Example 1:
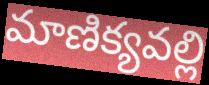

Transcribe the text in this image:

మాణిక్యవల్లి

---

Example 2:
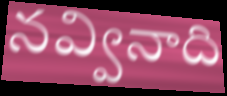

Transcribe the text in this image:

నవ్వినాది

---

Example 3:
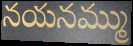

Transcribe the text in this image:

నయనమ్ము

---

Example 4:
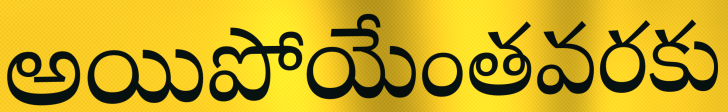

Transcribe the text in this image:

అయిపోయేంతవరకు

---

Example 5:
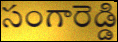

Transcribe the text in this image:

సంగారెడ్డి